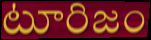
టూరిజం